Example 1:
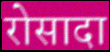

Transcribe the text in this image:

रोसादा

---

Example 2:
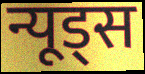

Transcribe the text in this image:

न्यूड्स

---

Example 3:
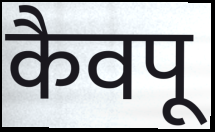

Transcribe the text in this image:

कैवपू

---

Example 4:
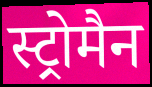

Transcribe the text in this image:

स्ट्रोमैन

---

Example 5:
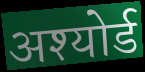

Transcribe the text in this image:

अश्योर्ड